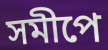
সমীপে